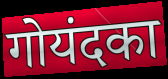
गोयंदका